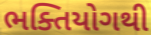
ભક્તિયોગથી